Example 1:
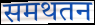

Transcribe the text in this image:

समथतन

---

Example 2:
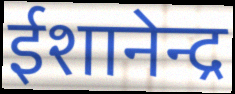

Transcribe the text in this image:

ईशानेन्द्र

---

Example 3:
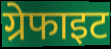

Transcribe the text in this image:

ग्रेफाइट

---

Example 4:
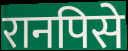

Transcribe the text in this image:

रानपिसे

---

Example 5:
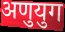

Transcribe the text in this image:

अणुयुग